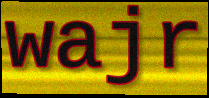
wajr